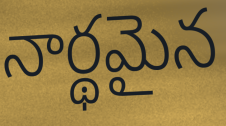
నార్థమైన